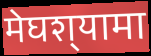
मेघश्यामा